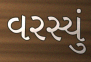
વરસ્યું